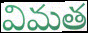
విమత